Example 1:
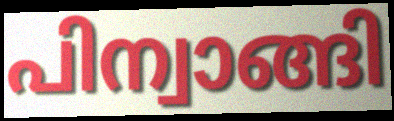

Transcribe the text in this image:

പിന്വാങ്ങി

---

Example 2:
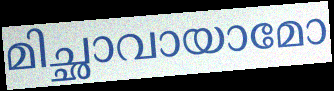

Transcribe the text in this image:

മിച്ഛാവായാമോ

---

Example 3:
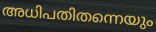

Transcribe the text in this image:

അധിപതിതന്നെയും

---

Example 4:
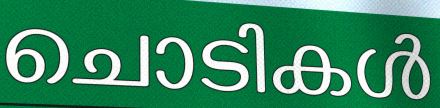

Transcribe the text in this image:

ചൊടികൾ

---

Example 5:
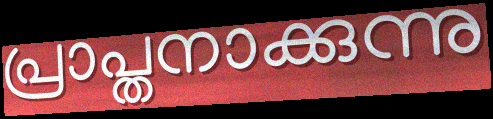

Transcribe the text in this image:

പ്രാപ്തനാക്കുന്നു